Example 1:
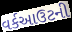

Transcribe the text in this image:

વર્કઆઉટની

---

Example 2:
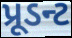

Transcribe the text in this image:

પ્રૂડન્ટ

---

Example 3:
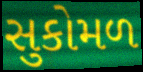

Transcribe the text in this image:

સુકોમળ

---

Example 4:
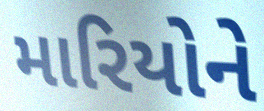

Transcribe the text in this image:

મારિયોને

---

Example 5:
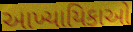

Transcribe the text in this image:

આખ્યાયિકાઓ